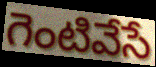
గెంటివేసే